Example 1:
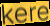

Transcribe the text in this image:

kere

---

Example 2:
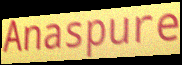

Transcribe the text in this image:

Anaspure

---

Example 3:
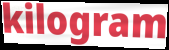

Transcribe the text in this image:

kilogram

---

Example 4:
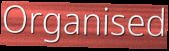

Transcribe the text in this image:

Organised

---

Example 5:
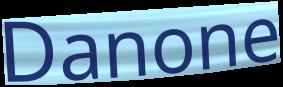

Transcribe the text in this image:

Danone